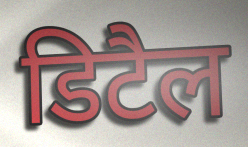
डिटैल